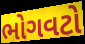
ભોગવટો